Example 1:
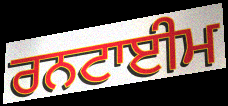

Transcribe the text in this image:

ਰਨਟਾਈਮ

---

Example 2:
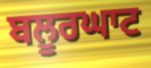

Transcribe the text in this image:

ਬਲੂਰਘਾਟ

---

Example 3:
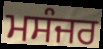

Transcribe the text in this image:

ਮਸੰਜਰ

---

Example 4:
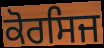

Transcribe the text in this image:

ਕੋਰਸਿਜ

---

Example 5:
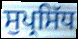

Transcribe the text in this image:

ਸੁਪ੍ਰਸਿੱਧ